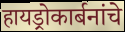
हायड्रोकार्बनांचे